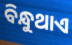
ବିନ୍ଧୁଥାଏ